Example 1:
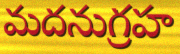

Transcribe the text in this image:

మదనుగ్రహ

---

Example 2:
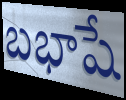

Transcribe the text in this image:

బభాషే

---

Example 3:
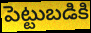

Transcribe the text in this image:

పెట్టుబడికి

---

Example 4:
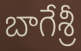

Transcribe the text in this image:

బాగేశ్రీ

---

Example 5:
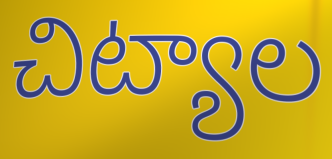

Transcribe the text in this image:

చిట్యాల